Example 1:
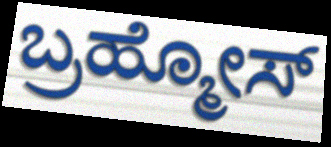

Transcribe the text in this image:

ಬ್ರಹ್ಮೋಸ್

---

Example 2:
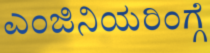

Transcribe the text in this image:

ಎಂಜಿನಿಯರಿಂಗ್ಗೆ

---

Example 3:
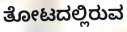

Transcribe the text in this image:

ತೋಟದಲ್ಲಿರುವ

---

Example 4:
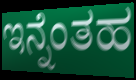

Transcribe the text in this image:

ಇನ್ನೆಂತಹ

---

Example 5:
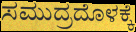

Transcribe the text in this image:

ಸಮುದ್ರದೊಳಕ್ಕೆ